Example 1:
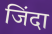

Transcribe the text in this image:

जिंदा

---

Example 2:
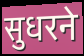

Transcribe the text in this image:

सुधरने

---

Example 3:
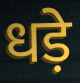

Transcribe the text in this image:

धड़े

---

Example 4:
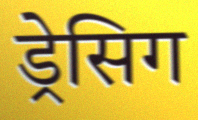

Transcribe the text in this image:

ड्रेसिग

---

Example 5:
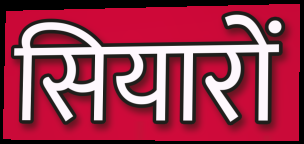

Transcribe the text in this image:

सियारों